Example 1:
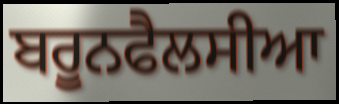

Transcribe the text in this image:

ਬਰੂਨਫੈਲਸੀਆ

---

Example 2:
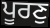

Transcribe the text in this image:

ਪੂਰਣੁ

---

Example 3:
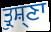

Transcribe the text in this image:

ਤ੍ਰੁਸ਼੍ਣਾ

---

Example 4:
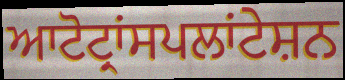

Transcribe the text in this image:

ਆਟੋਟ੍ਰਾਂਸਪਲਾਂਟੇਸ਼ਨ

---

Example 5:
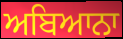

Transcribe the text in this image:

ਅਬਿਆਨਾ